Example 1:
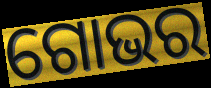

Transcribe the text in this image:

ଗୋଭର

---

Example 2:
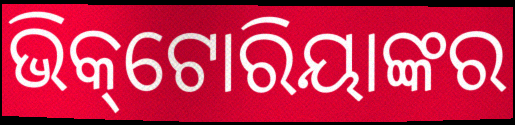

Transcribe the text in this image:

ଭିକ୍‌ଟୋରିୟାଙ୍କର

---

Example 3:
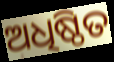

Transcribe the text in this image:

ଅଧିଷ୍ଠିତ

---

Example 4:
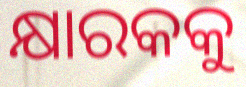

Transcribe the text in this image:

କ୍ଷାରକକୁ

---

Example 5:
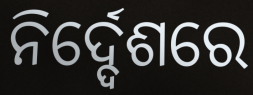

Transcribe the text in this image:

ନିର୍ଦ୍ଦେଶରେ